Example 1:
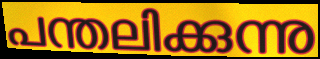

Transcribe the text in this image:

പന്തലിക്കുന്നു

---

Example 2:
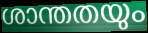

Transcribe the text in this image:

ശാന്തതയും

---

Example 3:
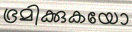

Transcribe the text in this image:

ഭ്രമിക്കുകയോ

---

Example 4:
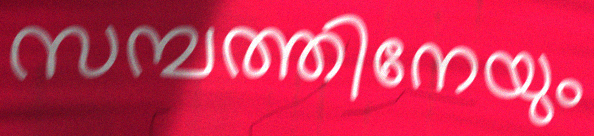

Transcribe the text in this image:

സമ്പത്തിനേയും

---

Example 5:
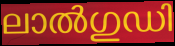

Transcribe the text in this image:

ലാൽഗുഡി